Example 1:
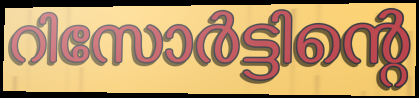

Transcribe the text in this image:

റിസോർട്ടിന്റെ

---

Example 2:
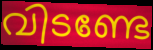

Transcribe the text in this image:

വിടണ്ടേ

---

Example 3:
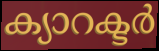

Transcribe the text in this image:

ക്യാറക്ടർ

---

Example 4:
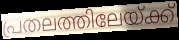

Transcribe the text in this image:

പ്രതലത്തിലേയ്ക്ക്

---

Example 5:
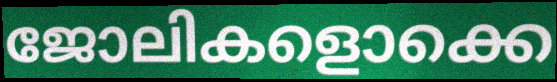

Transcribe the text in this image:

ജോലികളൊക്കെ